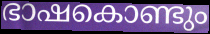
ഭാഷകൊണ്ടും